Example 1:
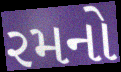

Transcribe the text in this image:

રમનો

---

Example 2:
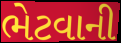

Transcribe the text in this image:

ભેટવાની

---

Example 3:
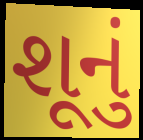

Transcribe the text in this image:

શૂનું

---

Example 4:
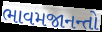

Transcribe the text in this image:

ભાવમજાનન્તો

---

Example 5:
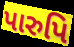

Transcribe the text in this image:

પારુપિ